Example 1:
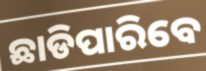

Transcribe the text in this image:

ଛାଡିପାରିବେ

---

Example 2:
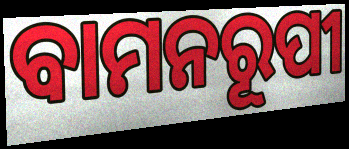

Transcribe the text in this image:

ବାମନରୂପୀ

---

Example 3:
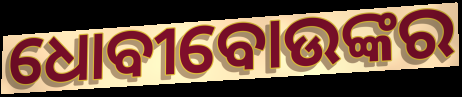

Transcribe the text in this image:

ଧୋବୀବୋଉଙ୍କର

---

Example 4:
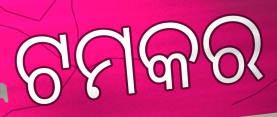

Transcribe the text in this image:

ଟମକର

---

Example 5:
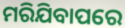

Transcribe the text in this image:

ମରିଯିବାପରେ